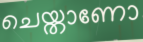
ചെയ്താണോ